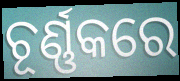
ଚୂର୍ଣ୍ଣକରେ